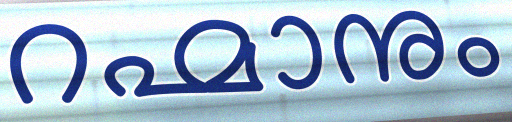
റഹ്മാനും